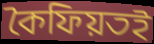
কৈফিয়তই